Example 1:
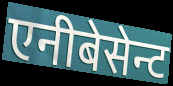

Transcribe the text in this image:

एनीबेसेन्ट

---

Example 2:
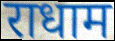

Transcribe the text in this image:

राधाम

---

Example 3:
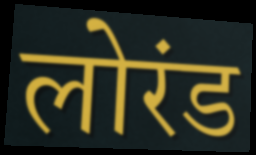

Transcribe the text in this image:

लोरंड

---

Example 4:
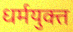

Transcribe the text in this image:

धर्मयुक्त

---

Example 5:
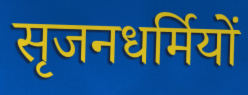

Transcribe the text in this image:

सृजनधर्मियों